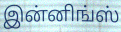
இன்னிங்ஸ்